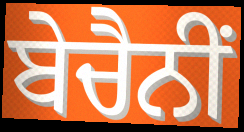
ਬੇਚੈਨੀਂ